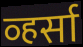
व्हर्सा